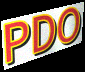
PDO